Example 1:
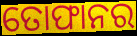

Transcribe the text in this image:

ତୋଫାନର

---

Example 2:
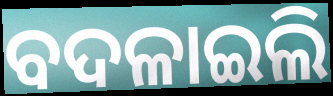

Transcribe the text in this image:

ବଦଳାଇଲି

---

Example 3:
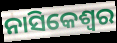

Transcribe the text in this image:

ନାସିକେଶ୍ୱର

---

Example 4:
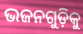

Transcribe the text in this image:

ଭଜନଗୁଡ଼ିକୁ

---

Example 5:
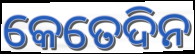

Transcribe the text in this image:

କେତେଦିନ